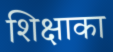
शिक्षाका